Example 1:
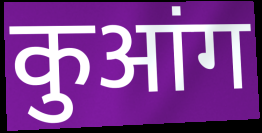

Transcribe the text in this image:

कुआंग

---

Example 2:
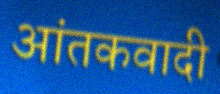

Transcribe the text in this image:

आंतकवादी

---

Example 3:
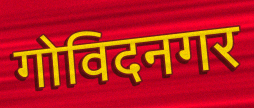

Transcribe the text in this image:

गोविदनगर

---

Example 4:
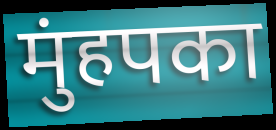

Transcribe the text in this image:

मुंहपका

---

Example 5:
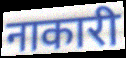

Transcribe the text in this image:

नाकारी